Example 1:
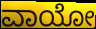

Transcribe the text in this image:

ವಾಯೋ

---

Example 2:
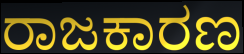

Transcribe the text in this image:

ರಾಜಕಾರಣ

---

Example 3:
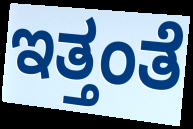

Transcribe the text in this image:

ಇತ್ತಂತೆ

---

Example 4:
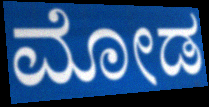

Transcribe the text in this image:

ಮೋಡ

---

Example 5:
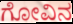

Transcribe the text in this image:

ಗೋವಿನ